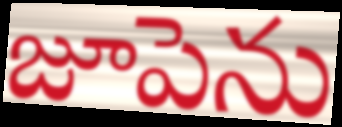
జూపెను